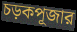
চড়কপূজার